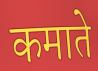
कमाते